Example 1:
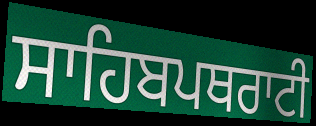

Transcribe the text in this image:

ਸਾਹਿਬਪਥਰਾਟੀ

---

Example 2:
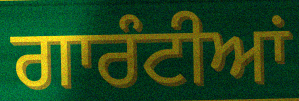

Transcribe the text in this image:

ਗਾਰੰਟੀਆਂ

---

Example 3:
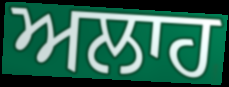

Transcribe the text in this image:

ਅਲਾਹ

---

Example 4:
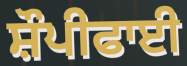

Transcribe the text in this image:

ਸ਼ੌਪੀਫਾਈ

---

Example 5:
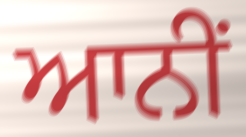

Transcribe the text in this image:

ਆਨੀਂ